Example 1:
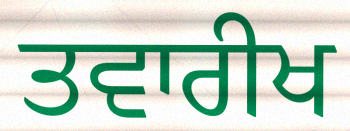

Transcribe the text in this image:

ਤਵਾਰੀਖ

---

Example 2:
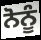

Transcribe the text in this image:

ਨੋਨੂੰ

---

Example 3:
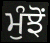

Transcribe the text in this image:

ਮੁੰਝੋਂ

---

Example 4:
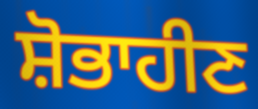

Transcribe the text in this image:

ਸ਼ੋਭਾਹੀਣ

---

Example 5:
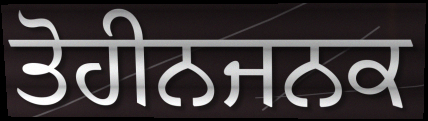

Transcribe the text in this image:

ਤੋਹੀਨਜਨਕ